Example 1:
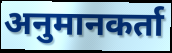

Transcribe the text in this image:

अनुमानकर्ता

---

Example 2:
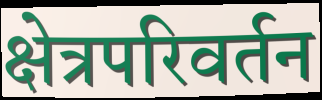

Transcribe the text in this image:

क्षेत्रपरिवर्तन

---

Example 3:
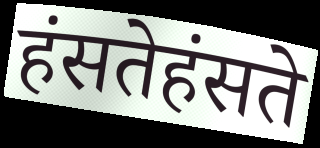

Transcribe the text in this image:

हंसतेहंसते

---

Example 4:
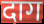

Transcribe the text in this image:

दाग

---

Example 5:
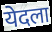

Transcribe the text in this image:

येदला